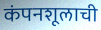
कंपनशूलाची